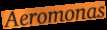
Aeromonas